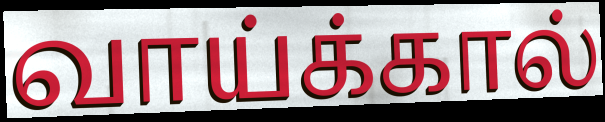
வாய்க்கால்